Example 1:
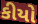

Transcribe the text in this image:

કીયો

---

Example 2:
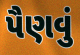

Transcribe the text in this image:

પૈણવું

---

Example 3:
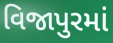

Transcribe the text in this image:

વિજાપુરમાં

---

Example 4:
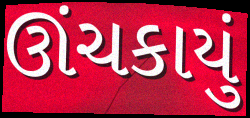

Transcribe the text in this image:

ઊંચકાયું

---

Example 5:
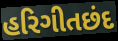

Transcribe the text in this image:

હરિગીતછંદ